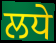
ਲਧੇ